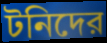
টনিদের